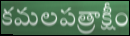
కమలపత్రాక్షీం